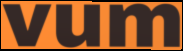
vum